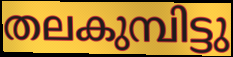
തലകുമ്പിട്ടു